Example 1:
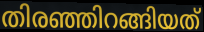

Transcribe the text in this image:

തിരഞ്ഞിറങ്ങിയത്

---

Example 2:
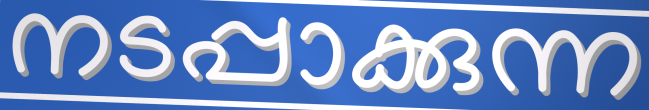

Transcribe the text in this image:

നടപ്പാക്കുന്ന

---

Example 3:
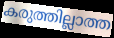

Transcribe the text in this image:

കരുത്തില്ലാത്ത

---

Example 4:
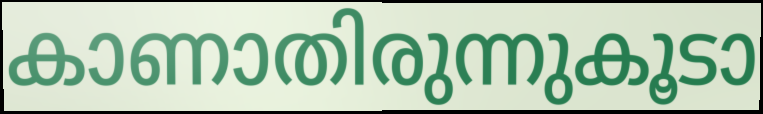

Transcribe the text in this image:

കാണാതിരുന്നുകൂടാ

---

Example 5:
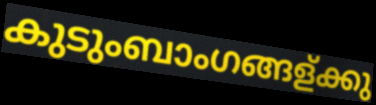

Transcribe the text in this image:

കുടുംബാംഗങ്ങള്ക്കു